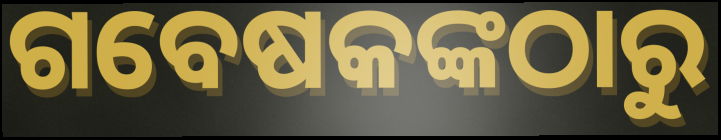
ଗବେଷକଙ୍କଠାରୁ